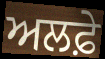
ਅਲਫ਼ੇ